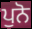
ਪੁਨੋ